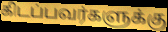
கிடப்பவர்களுக்கு